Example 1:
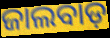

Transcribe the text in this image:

ଜାଲବାଡ଼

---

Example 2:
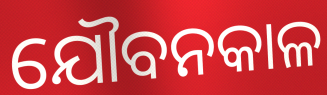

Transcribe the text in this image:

ଯୌବନକାଳ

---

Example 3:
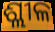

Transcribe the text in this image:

ଶ୍ଲୀଳ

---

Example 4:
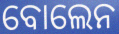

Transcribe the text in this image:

ବୋଲେନ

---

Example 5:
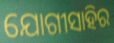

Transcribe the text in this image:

ଯୋଗୀସାହିର